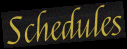
Schedules